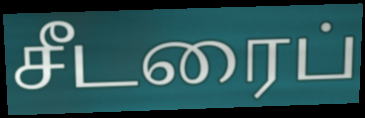
சீடரைப்